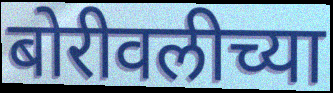
बोरीवलीच्या